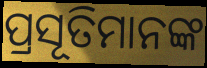
ପ୍ରସୂତିମାନଙ୍କ